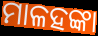
ମାଳହଙ୍କା